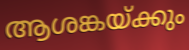
ആശങ്കയ്ക്കും